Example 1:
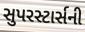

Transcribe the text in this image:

સુપરસ્ટાર્સની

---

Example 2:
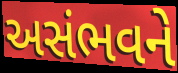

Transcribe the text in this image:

અસંભવને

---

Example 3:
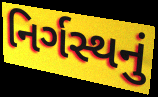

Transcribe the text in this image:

નિર્ગસ્થનું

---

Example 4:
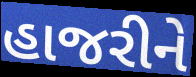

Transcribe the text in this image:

હાજરીને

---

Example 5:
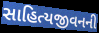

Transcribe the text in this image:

સાહિત્યજીવનની